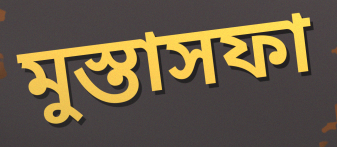
মুস্তাসফা